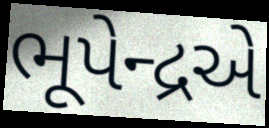
ભૂપેન્દ્રએ